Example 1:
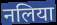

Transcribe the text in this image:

नलिया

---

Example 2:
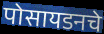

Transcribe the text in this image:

पोसायडनचे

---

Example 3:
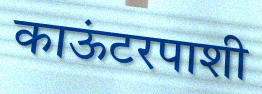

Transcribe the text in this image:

काऊंटरपाशी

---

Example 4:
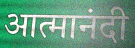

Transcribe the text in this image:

आत्मानंदी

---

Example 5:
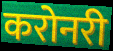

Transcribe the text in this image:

करोनरी